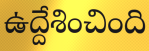
ఉద్దేశించింది